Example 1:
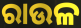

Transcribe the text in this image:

ରାଉଳ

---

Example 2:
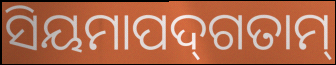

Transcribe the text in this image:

ସିୟମାପଦ୍‌ଗତାମ୍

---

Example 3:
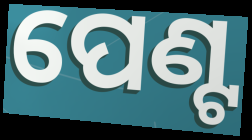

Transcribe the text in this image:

ପେଣ୍ଟ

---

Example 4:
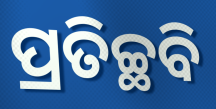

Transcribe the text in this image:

ପ୍ରତିଚ୍ଛବି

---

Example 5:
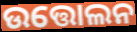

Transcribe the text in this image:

ଉତ୍ତୋଲନ